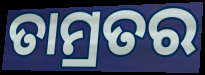
ତାମ୍ରତର